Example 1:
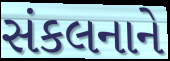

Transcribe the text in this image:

સંકલનાને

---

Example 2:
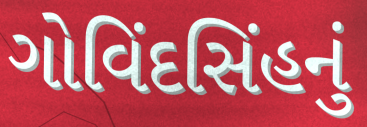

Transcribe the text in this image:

ગોવિંદસિંહનું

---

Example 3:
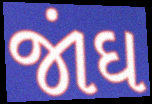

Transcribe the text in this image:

જાંઘ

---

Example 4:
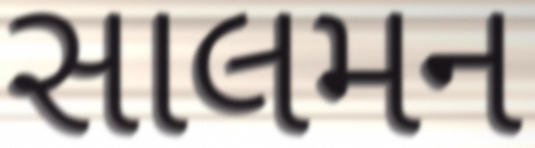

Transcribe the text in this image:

સાલમન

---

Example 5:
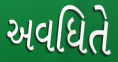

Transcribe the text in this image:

અવધિતે